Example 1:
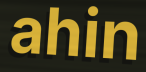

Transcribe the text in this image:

ahin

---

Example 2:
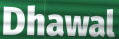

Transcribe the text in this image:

Dhawal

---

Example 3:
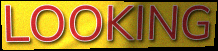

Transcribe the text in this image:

LOOKING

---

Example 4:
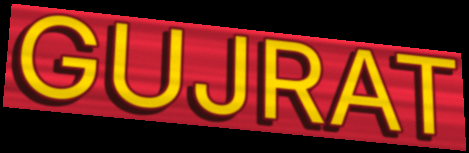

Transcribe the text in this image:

GUJRAT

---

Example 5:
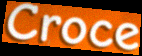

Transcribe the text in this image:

Croce